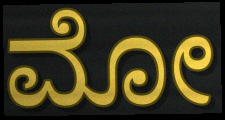
ಮೋ